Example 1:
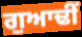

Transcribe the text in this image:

ਗੁਆਢੀਂ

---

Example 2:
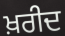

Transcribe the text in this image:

ਖ਼ਰੀਦ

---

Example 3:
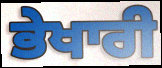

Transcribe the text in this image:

ਭੇਖਾਰੀ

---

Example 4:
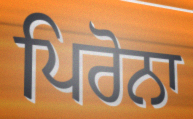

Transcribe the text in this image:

ਪਿਰੋਨਾ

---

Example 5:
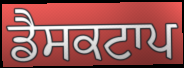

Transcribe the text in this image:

ਡੈਸਕਟਾਪ